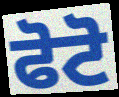
ਫੋਟੋ